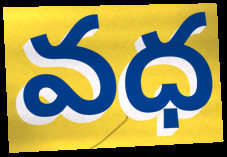
వధ